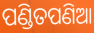
ପଣ୍ଡିତପଣିଆ